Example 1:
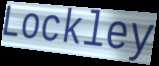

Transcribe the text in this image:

Lockley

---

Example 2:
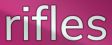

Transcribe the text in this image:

rifles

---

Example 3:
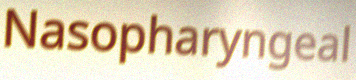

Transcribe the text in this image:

Nasopharyngeal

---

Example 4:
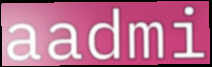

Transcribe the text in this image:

aadmi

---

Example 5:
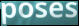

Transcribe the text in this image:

poses